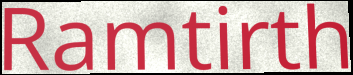
Ramtirth